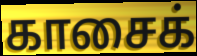
காசைக்